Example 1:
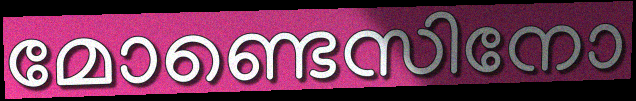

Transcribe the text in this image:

മോണ്ടെസിനോ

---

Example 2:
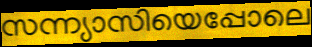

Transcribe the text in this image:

സന്ന്യാസിയെപ്പോലെ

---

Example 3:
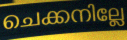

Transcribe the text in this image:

ചെക്കനില്ലേ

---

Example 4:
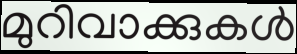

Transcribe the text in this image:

മുറിവാക്കുകൾ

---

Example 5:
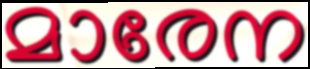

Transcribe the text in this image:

മാരേന